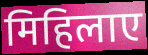
मिहिलाए